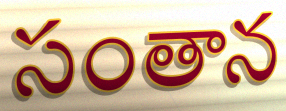
సంతాన